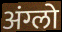
अंग्लो